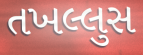
તખલ્લુસ